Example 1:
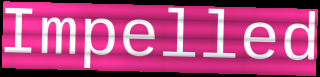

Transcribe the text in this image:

Impelled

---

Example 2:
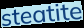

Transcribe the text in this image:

steatite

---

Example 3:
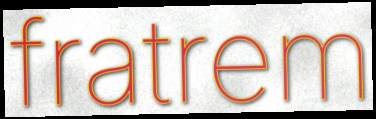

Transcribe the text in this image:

fratrem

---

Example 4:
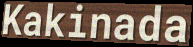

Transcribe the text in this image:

Kakinada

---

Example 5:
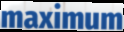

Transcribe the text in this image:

maximum